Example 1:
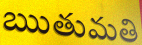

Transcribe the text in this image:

ఋతుమతి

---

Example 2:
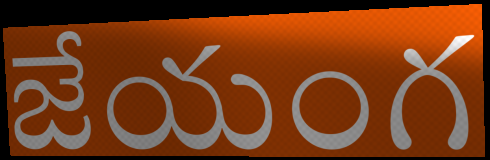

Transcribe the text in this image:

జేయంగ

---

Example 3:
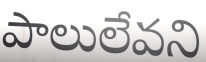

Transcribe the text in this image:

పాలులేవని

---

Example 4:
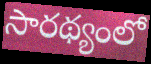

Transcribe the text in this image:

సారథ్యంలో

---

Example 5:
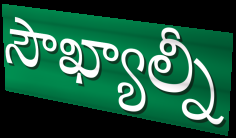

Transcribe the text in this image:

సౌఖ్యాల్నీ